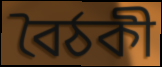
বৈঠকী